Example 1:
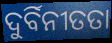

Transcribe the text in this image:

ଦୁର୍ବିନୀତତା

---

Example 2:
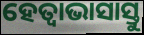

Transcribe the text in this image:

ହେତ୍ଵାଭାସାସ୍ତୁ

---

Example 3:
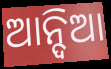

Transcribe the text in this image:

ଆନ୍ଦିଆ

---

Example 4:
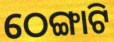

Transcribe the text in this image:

ଠେଙ୍ଗାଟି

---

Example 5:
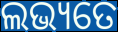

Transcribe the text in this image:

ଲଭ୍ୟତେ